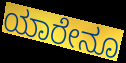
ಯಾರೇನೂ